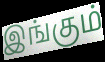
இங்கும்